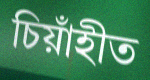
চিয়াঁহীত